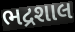
ભદ્રશાલ